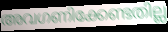
അവഗണിക്കേണ്ടതില്ല